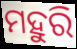
ମହୁରି